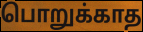
பொறுக்காத